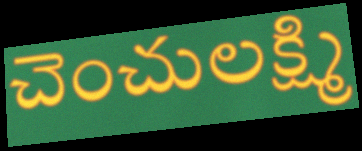
చెంచులక్ష్మి